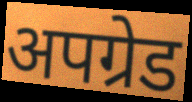
अपग्रेड